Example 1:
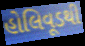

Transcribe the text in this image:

હોલિવૂડથી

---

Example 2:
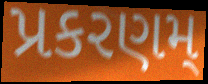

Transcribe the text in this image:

પ્રકરણમ્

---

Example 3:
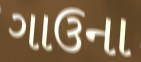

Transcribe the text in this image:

ગાઉના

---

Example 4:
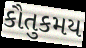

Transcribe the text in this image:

કૌતુકમય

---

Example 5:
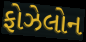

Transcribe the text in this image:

ફોઝેલોન